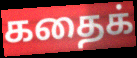
கதைக்